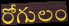
రోగులం